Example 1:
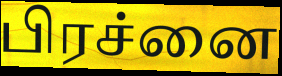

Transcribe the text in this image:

பிரச்னை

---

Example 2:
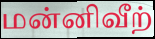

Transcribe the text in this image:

மன்னிவீற்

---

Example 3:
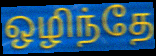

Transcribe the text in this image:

ஒழிந்தே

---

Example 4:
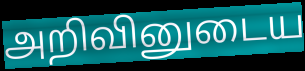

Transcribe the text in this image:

அறிவினுடைய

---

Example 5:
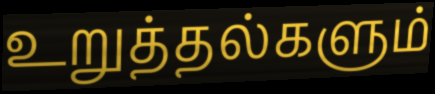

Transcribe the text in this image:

உறுத்தல்களும்